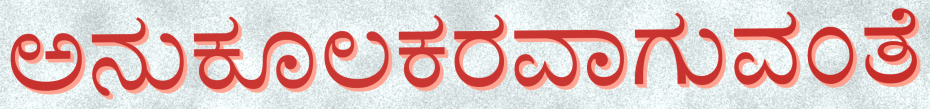
ಅನುಕೂಲಕರವಾಗುವಂತೆ